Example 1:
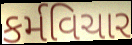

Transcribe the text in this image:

કર્મવિચાર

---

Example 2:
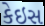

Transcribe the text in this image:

કેઇસ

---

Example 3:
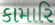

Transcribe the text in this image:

કામારિ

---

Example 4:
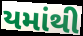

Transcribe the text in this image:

યમાંથી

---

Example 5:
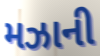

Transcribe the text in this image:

મઝાની